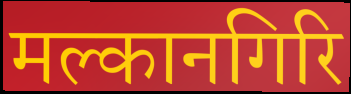
मल्कानगिरि